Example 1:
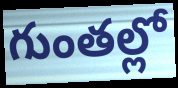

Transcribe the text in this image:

గుంతల్లో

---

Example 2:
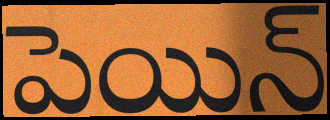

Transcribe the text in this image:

పెయిన్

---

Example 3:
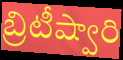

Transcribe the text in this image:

బ్రిటీష్వారి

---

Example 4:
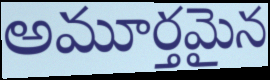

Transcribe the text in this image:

అమూర్తమైన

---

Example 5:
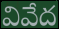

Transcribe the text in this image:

వివేద